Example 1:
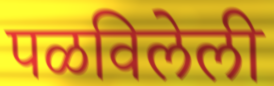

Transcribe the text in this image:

पळविलेली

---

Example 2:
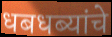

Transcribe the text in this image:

धबधब्यांचे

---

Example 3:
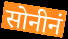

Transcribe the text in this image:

सोनीनं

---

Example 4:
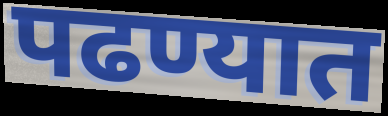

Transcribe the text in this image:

पढण्यात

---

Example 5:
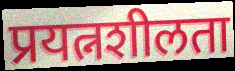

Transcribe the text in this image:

प्रयत्नशीलता